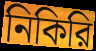
নিকিরি